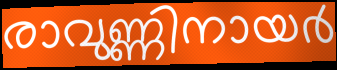
രാവുണ്ണിനായർ